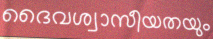
ദൈവശ്വാസീയതയും